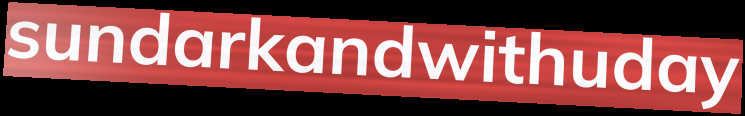
sundarkandwithuday